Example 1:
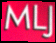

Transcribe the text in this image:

MLJ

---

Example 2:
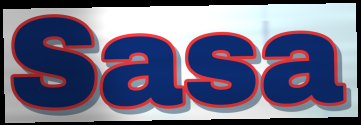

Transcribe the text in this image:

Sasa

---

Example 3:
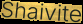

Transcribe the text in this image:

Shaivite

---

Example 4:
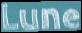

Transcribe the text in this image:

Lune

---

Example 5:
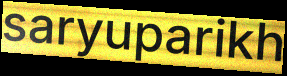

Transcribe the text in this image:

saryuparikh